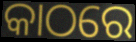
କାଠରେ